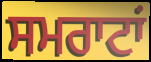
ਸਮਰਾਟਾਂ